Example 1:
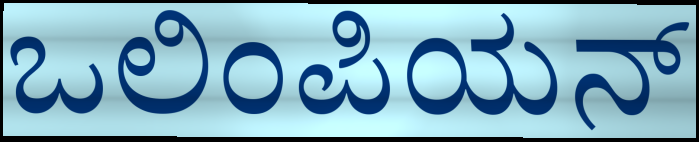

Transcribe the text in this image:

ಒಲಿಂಪಿಯನ್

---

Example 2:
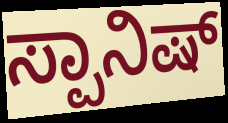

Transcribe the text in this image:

ಸ್ಪಾನಿಷ್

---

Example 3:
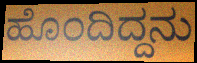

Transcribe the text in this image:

ಹೊಂದಿದ್ದನು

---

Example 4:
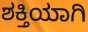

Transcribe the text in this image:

ಶಕ್ತಿಯಾಗಿ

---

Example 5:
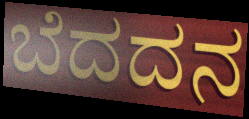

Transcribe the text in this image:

ಬೆದದನ